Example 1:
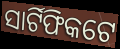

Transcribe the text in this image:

ସାର୍ଟିଫିକଟେ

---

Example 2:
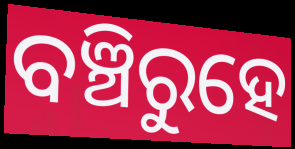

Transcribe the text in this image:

ବଞ୍ଚିରୁହେ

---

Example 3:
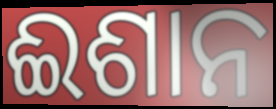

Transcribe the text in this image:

ଈଶାନ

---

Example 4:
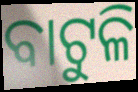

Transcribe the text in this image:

ବାଟୁଳି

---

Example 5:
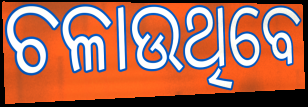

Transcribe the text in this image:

ଚଳାଉଥିବେ